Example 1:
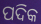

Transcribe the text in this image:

ପଦିକ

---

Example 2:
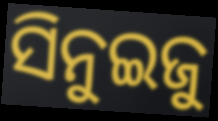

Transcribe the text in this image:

ସିନୁଇଜୁ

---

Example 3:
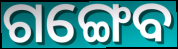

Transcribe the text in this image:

ଗଙ୍ଗେବ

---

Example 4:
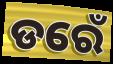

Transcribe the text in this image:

ଡରେଁ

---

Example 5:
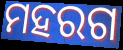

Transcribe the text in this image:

ମହରଗ